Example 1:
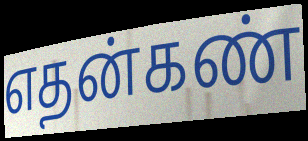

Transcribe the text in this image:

எதன்கண்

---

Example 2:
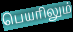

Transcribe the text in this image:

பெயரிலும்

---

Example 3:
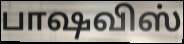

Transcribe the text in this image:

பாஷவிஸ்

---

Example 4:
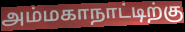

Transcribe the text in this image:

அம்மகாநாட்டிற்கு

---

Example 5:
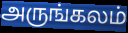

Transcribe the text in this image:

அருங்கலம்